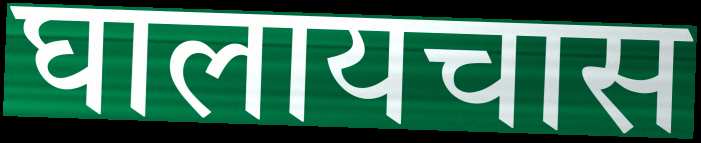
घालायचास